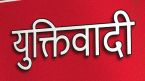
युक्तिवादी